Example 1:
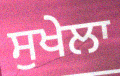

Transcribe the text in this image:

ਸੁਖੇਲਾ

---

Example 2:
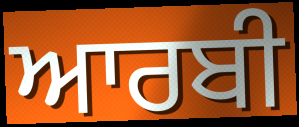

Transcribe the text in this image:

ਆਰਬੀ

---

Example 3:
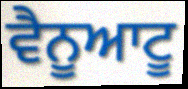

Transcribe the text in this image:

ਵੈਨੂਆਟੂ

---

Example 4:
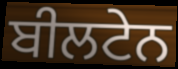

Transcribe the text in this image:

ਬੀਲਟੇਨ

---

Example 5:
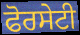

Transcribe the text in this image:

ਫੋਰਸੇਟੀ